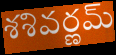
శశివర్ణమ్